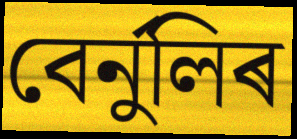
বেৰ্নুলিৰ